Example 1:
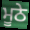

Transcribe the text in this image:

ਮੂਠੇ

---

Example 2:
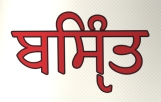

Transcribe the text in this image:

ਬਸੵਿੰਤ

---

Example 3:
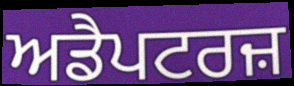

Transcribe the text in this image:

ਅਡੈਪਟਰਜ਼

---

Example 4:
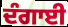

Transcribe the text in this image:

ਦੰਗਾਈ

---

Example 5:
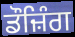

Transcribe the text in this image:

ਡੌਜ਼ਿੰਗ